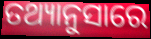
ତଥ୍ୟାନୁସାରେ